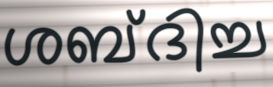
ശബ്ദിച്ച